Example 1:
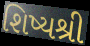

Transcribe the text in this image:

શિષ્યશ્રી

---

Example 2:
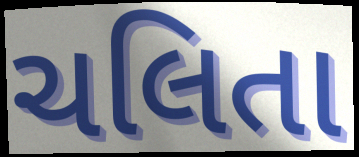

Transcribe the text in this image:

ચલિતા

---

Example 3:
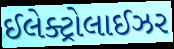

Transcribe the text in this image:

ઈલેક્ટ્રોલાઈઝર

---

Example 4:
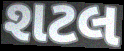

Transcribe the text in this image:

શટલ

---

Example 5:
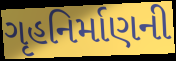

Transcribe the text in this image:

ગૃહનિર્માણની